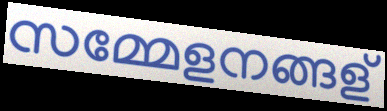
സമ്മേളനങ്ങള്